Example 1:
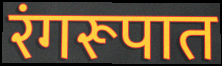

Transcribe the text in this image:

रंगरूपात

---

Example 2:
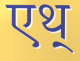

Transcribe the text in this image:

एथ्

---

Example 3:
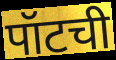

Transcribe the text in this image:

पॉटची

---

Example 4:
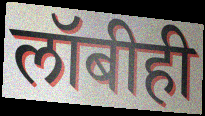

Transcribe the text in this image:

लॉबीही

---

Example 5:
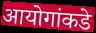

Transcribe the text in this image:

आयोगांकडे